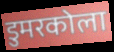
डुमरकोला